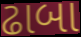
ઢાબા